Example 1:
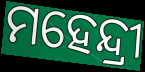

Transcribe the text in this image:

ମହେନ୍ଦ୍ରୀ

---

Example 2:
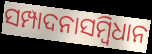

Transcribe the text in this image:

ସମ୍ପାଦନାସମ୍ବିଧାନ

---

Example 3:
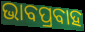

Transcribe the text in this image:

ଭାବପ୍ରବାହ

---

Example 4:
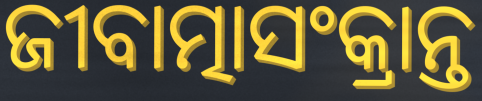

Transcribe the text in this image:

ଜୀବାତ୍ମାସଂକ୍ରାନ୍ତ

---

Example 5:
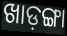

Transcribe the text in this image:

ଖାଡ଼ଙ୍ଗା